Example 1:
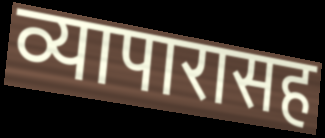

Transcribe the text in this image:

व्यापारासह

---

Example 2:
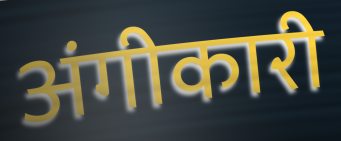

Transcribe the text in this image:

अंगीकारी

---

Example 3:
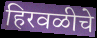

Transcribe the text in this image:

हिरवळीचे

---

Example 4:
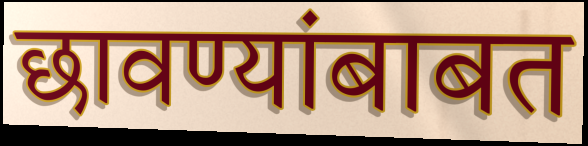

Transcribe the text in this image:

छावण्यांबाबत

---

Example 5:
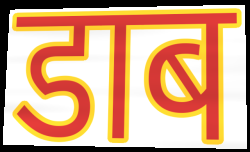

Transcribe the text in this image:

डाब